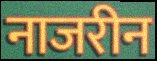
नाजरीन